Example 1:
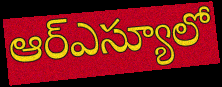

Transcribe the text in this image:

ఆర్ఎస్యూలో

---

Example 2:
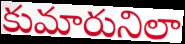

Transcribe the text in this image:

కుమారునిలా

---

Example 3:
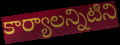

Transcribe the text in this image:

కార్యాలన్నిటిని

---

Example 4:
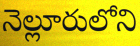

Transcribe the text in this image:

నెల్లూరులోని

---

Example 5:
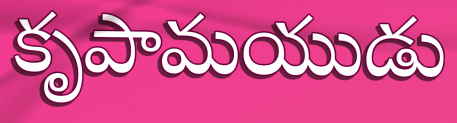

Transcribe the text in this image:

కృపామయుడు